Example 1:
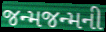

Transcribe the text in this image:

જન્મજન્મની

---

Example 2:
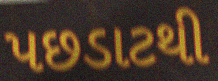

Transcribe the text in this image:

પછડાટથી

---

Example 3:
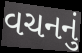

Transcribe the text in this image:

વચનનું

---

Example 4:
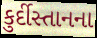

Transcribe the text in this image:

કુર્દીસ્તાનના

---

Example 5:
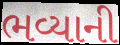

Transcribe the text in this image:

ભવ્યાની